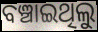
ବଞ୍ଚାଇଥିଲୁ